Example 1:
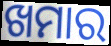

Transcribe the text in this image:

ଖମାର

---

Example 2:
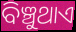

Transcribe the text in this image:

ବିଞ୍ଚୁଥାଏ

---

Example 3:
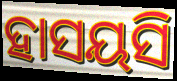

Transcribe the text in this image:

ହାସୟସି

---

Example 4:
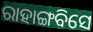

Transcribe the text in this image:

ରାହାଙ୍ଗବିସେ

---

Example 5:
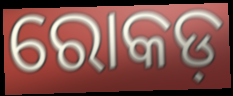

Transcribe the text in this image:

ରୋକଡ଼